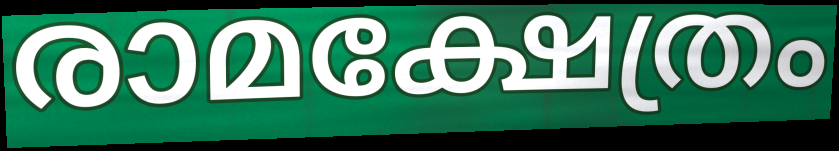
രാമക്ഷേത്രം